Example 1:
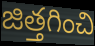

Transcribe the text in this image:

జిత్తగించి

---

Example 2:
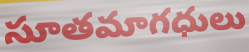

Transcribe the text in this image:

సూతమాగధులు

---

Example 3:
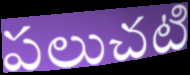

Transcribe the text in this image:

పలుచటి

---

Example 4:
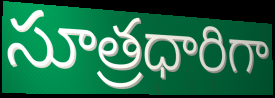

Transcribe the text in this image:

సూత్రధారిగా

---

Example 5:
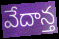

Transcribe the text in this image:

వేదాన్త